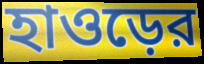
হাওড়ের